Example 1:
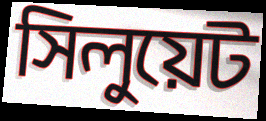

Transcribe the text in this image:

সিলুয়েট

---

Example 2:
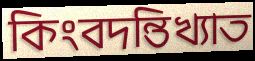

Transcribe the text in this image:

কিংবদন্তিখ্যাত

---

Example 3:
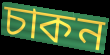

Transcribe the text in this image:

চাকন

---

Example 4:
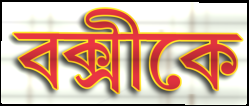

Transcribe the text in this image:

বক্সীকে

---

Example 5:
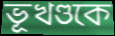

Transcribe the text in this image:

ভূখণ্ডকে